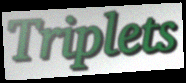
Triplets